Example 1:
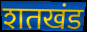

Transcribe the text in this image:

शतखंड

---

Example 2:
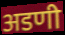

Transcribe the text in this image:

अडणी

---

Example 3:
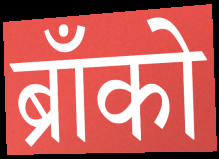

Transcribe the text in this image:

ब्राँको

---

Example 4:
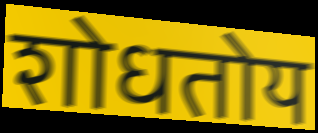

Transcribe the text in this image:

शोधतोय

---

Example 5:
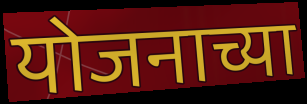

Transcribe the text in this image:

योजनाच्या